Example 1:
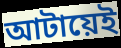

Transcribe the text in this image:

আটায়েই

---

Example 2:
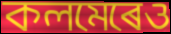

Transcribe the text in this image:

কলমেৰেও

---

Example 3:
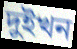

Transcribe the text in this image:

দুইখন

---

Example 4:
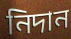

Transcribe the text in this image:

নিদান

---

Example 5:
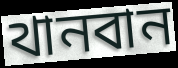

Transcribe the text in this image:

থানবান